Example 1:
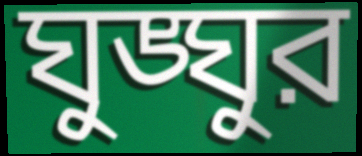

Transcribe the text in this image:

ঘুঙ্ঘুর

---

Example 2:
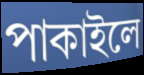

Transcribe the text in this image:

পাকাইলে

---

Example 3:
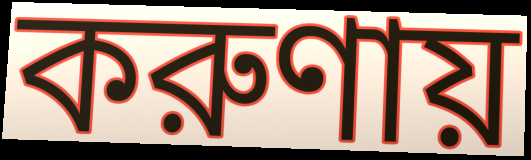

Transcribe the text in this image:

করুণায়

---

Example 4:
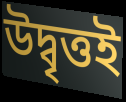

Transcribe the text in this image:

উদ্বৃত্তই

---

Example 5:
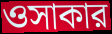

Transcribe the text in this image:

ওসাকার